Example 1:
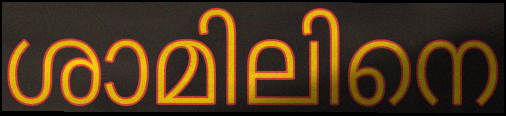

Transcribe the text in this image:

ശാമിലിനെ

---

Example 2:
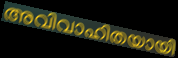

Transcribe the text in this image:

അവിവാഹിതയായി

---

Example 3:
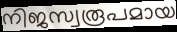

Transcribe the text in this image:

നിജസ്വരൂപമായ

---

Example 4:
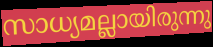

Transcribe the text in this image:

സാധ്യമല്ലായിരുന്നു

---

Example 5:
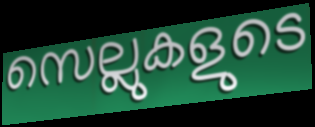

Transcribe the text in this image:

സെല്ലുകളുടെ